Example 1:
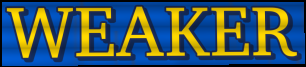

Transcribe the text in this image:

WEAKER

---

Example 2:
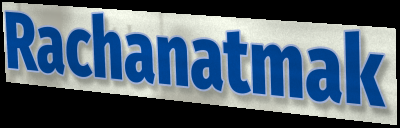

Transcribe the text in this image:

Rachanatmak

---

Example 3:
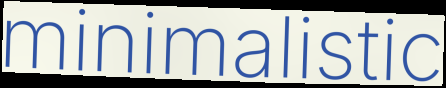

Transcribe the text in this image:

minimalistic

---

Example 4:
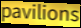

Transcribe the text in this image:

pavilions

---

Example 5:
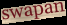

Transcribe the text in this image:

swapan